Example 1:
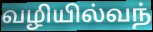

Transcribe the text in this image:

வழியில்வந்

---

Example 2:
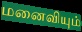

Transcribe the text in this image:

மனைவியும்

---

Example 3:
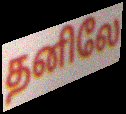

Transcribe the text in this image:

தனிலே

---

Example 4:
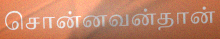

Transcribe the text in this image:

சொன்னவன்தான்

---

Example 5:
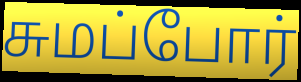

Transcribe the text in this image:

சுமப்போர்